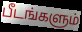
பீடங்களும்